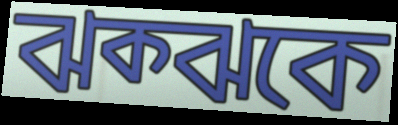
ঝক্ঝকে